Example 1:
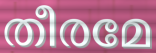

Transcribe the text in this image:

തീരമേ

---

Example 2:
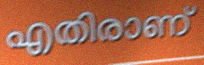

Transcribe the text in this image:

എതിരാണ്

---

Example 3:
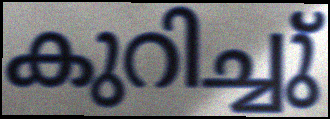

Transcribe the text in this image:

കുറിച്ചു്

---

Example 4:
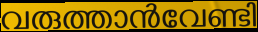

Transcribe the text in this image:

വരുത്താൻവേണ്ടി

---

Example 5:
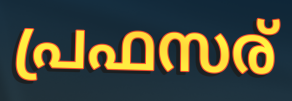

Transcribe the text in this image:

പ്രഫസര്